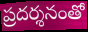
ప్రదర్శనంతో